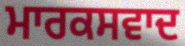
ਮਾਰਕਸਵਾਦ